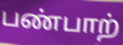
பண்பாற்